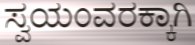
ಸ್ವಯಂವರಕ್ಕಾಗಿ